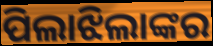
ପିଲାଝିଲାଙ୍କର